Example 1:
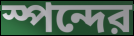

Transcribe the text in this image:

স্পন্দের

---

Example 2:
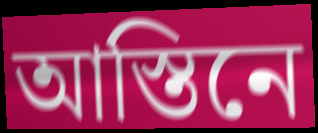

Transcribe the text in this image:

আস্তিনে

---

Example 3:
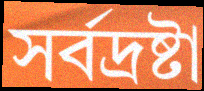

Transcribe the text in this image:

সর্বদ্রষ্টা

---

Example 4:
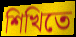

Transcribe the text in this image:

শিখিতে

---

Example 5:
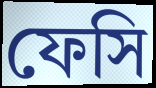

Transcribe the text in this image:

ফেসি